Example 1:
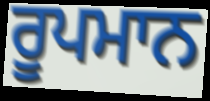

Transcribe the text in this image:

ਰੂਪਮਾਨ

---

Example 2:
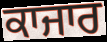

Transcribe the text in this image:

ਕਾਜਾਰ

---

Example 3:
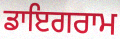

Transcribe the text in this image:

ਡਾਇਗਰਾਮ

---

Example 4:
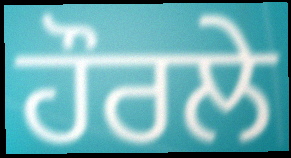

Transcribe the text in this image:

ਹੌਰਲੇ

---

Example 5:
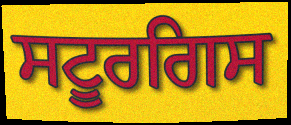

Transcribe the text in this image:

ਸਟੂਰਗਿਸ